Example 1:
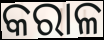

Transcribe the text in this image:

କରାଳ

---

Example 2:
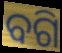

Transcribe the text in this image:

ବଗି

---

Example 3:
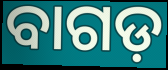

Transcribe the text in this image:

ବାଗଡ଼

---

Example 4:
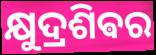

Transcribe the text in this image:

କ୍ଷୁଦ୍ରଶିଵର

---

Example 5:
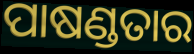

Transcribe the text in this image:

ପାଷଣ୍ଡତାର